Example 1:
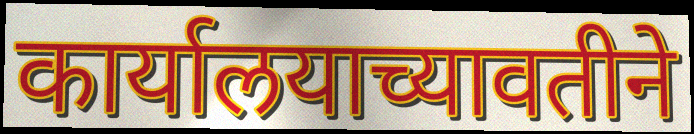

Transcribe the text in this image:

कार्यालयाच्यावतीने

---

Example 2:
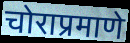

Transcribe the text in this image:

चोराप्रमाणे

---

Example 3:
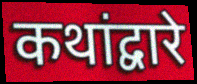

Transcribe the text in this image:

कथांद्वारे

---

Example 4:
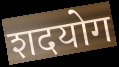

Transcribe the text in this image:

शदयोग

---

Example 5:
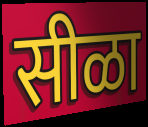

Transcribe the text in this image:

सीळा